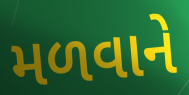
મળવાને